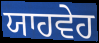
ਯਾਹਵੇਹ